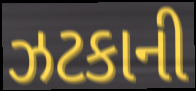
ઝટકાની